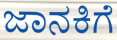
ಜಾನಕಿಗೆ